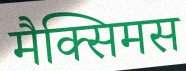
मैक्सिमस